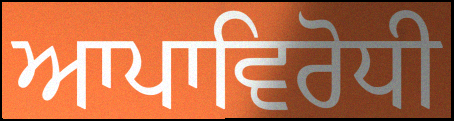
ਆਪਾਵਿਰੋਧੀ